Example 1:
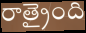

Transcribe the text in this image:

రాత్రైంది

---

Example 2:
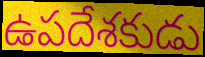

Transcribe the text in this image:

ఉపదేశకుడు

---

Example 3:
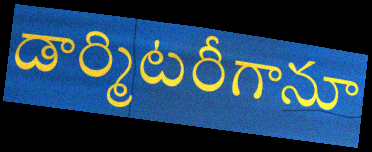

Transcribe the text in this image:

డార్మిటరీగానూ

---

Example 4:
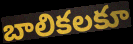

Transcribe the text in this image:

బాలికలకూ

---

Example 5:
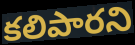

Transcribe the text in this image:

కలిపారని